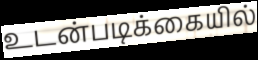
உடன்படிக்கையில்